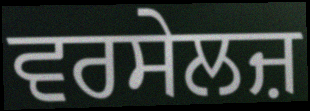
ਵਰਸੇਲਜ਼